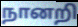
நானறி